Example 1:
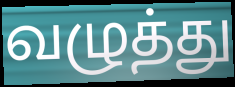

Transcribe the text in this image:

வழுத்து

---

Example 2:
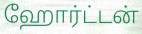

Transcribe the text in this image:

ஹோர்ட்டன்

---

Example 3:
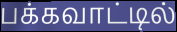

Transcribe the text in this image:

பக்கவாட்டில்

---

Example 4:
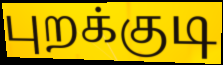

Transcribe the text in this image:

புறக்குடி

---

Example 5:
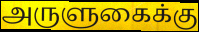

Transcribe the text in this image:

அருளுகைக்கு